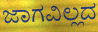
ಜಾಗವಿಲ್ಲದ